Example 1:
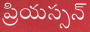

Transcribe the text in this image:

ప్రియస్సన్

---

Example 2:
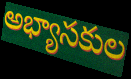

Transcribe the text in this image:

అభ్యాసకుల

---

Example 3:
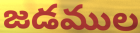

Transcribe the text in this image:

జడముల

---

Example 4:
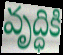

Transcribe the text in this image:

వృద్ధికి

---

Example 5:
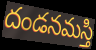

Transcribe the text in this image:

దండనమస్తి